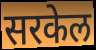
सरकेल